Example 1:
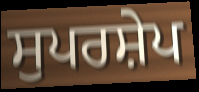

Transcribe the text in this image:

ਸੁਪਰਸ਼ੇਪ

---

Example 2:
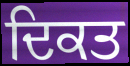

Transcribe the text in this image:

ਦਿਕਤ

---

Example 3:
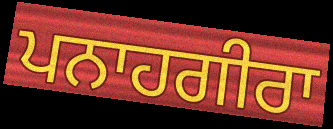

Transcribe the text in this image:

ਪਨਾਹਗੀਰਾ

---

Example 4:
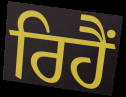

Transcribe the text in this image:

ਰਿਹੈੰ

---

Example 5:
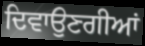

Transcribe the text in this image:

ਦਿਵਾਉਣਗੀਆਂ